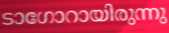
ടാഗോറായിരുന്നു